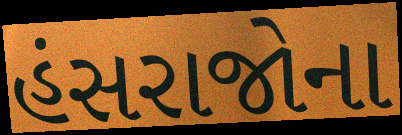
હંસરાજોના